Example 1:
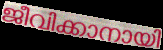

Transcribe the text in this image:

ജീവിക്കാനായി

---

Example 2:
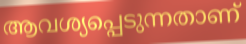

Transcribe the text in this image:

ആവശ്യപ്പെടുന്നതാണ്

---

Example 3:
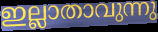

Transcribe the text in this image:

ഇല്ലാതാവുന്നു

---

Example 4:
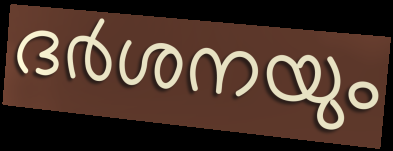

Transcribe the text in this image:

ദർശനയും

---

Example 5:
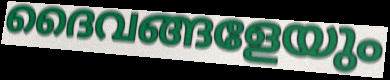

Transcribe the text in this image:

ദൈവങ്ങളേയും